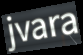
jvara